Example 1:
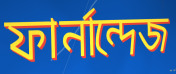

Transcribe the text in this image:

ফার্নান্দেজ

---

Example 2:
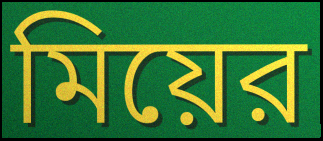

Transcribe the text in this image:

মিয়ের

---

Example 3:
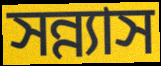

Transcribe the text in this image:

সন্ন্যাস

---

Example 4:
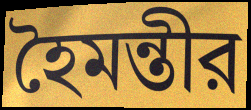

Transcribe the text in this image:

হৈমন্তীর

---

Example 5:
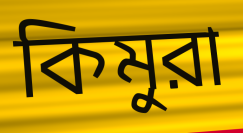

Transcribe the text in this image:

কিমুরা